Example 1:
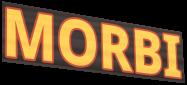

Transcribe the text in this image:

MORBI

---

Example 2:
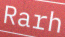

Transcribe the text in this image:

Rarh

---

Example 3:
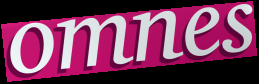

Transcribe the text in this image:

omnes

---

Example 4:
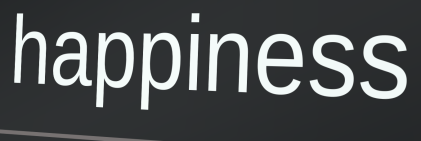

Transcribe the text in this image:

happiness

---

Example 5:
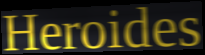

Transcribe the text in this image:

Heroides